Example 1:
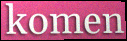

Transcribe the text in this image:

komen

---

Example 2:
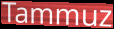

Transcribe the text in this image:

Tammuz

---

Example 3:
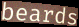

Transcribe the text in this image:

beards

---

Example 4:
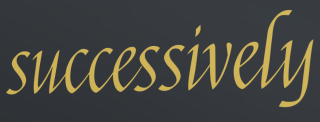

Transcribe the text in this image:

successively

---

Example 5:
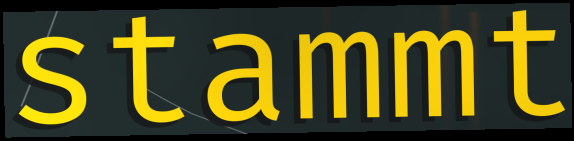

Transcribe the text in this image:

stammt